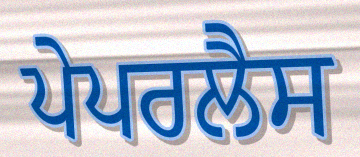
ਪੇਪਰਲੈਸ